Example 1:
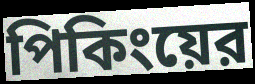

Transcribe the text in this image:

পিকিংয়ের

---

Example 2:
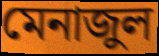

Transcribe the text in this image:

মেনাজুল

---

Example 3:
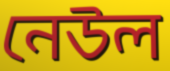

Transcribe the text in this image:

নেউল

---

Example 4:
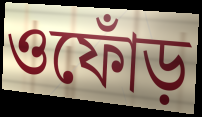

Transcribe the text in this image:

ওফোঁড়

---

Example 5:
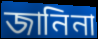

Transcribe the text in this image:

জানিনা